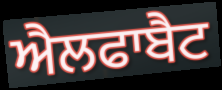
ਐਲਫਾਬੈਟ